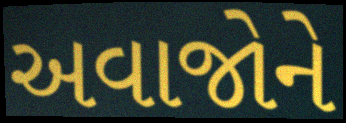
અવાજોને